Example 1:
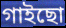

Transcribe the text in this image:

গাইছো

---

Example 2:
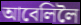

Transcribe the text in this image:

আবেলিলৈ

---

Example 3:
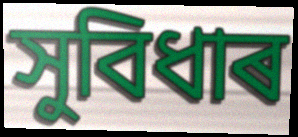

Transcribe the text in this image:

সুবিধাৰ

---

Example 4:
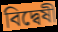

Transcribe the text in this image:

বিদ্বেষী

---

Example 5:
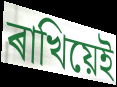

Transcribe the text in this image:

ৰাখিয়েই